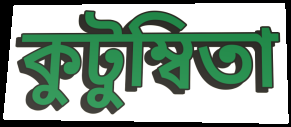
কুটুম্বিতা